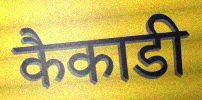
कैकाडी